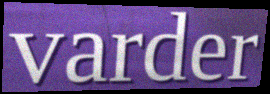
varder